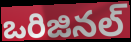
ఒరిజినల్